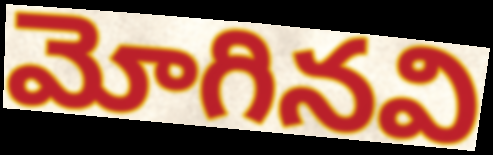
మోగినవి